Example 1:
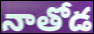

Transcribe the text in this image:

నాతోడ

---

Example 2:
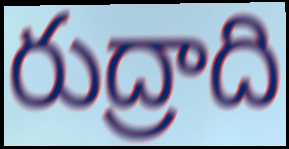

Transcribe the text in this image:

రుద్రాది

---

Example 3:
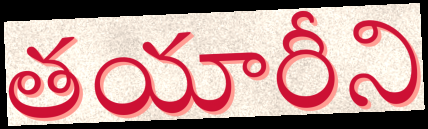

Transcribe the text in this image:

తయారీని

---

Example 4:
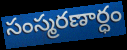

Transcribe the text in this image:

సంస్మరణార్ధం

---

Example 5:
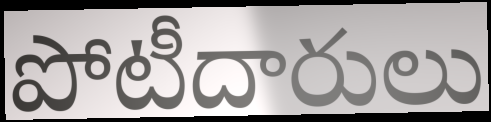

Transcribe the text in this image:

పోటీదారులు